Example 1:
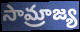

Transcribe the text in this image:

సామ్రాజ్య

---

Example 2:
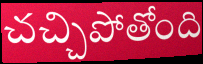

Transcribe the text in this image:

చచ్చిపోతోంది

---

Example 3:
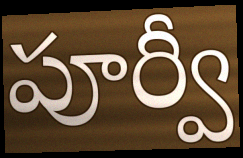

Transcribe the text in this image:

పూర్వీ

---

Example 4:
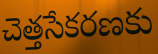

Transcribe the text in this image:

చెత్తసేకరణకు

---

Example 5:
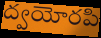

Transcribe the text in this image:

ద్వయోరపి